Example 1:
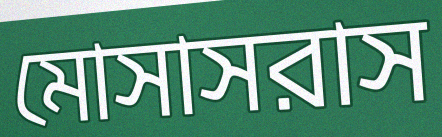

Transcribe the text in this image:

মোসাসরাস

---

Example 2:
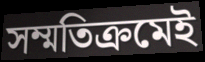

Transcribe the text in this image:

সম্মতিক্রমেই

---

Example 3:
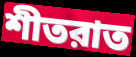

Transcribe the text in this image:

শীতরাত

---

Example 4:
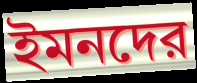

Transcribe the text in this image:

ইমনদের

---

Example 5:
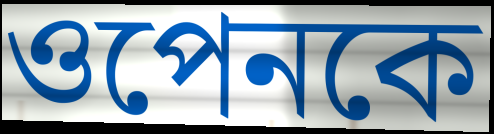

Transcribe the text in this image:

ওপেনকে